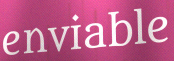
enviable